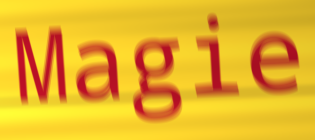
Magie